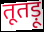
तूतड़ू